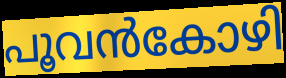
പൂവൻകോഴി